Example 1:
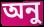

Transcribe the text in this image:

অনু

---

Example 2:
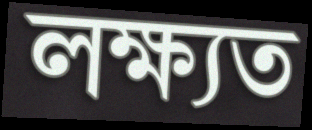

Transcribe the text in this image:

লক্ষ্যত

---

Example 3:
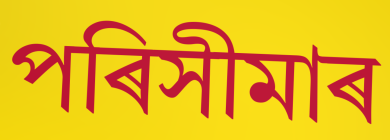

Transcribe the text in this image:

পৰিসীমাৰ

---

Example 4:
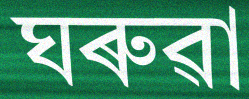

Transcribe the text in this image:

ঘৰুৱা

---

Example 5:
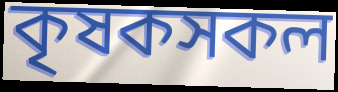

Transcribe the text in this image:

কৃষকসকল